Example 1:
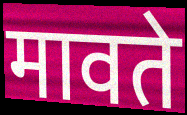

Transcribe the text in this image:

मावते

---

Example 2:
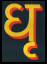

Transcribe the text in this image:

धृ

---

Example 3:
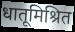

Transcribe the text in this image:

धातूमिश्रित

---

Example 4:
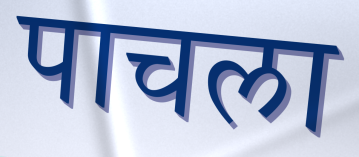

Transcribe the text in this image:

पाचला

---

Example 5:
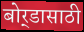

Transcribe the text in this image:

बोर्डासाठी